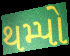
થમ્પો